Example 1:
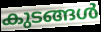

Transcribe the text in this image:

കുടങ്ങൾ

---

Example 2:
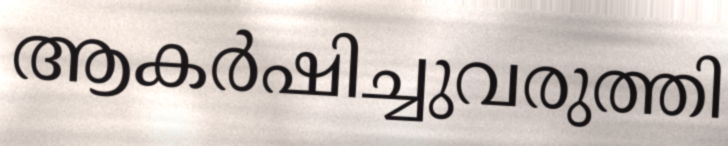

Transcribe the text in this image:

ആകർഷിച്ചുവരുത്തി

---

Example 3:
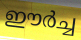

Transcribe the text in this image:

ഈർച്ച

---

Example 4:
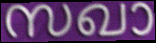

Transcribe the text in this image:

സഖാ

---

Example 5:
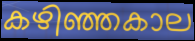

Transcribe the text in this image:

കഴിഞ്ഞകാല